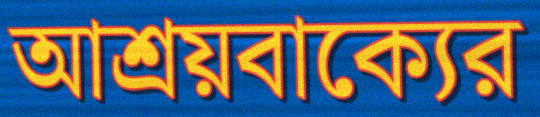
আশ্রয়বাক্যের